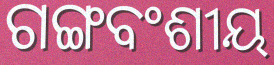
ଗଙ୍ଗବଂଶୀୟ